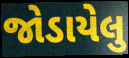
જોડાયેલુ